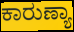
ಕಾರುಣ್ಯಾ